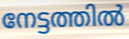
നേട്ടത്തിൽ